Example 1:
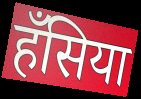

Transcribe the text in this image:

हँसिया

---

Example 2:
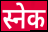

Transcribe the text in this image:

स्नेक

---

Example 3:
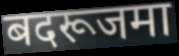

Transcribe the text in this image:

बदरूजमा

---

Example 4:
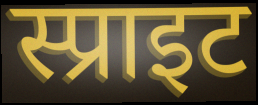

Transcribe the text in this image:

स्प्राइट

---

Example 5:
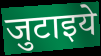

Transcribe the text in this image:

जुटाइये